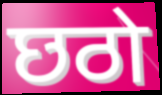
छठो